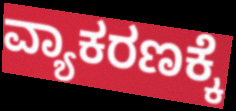
ವ್ಯಾಕರಣಕ್ಕೆ